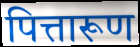
पित्तारूण